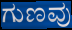
ಗುಣವು